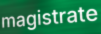
magistrate